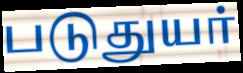
படுதுயர்